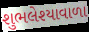
શુભલેશ્યાવાળા